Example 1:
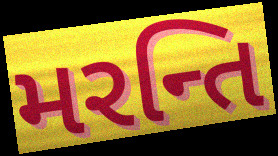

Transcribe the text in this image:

મરન્તિ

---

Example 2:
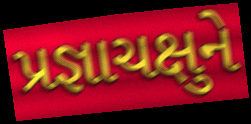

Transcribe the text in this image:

પ્રજ્ઞાચક્ષુને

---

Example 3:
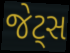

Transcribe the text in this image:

જેટ્સ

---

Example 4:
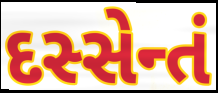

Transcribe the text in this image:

દસ્સેન્તં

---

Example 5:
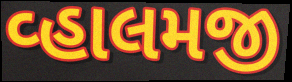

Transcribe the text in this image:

વ્હાલમજી